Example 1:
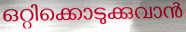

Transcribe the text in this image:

ഒറ്റിക്കൊടുക്കുവാൻ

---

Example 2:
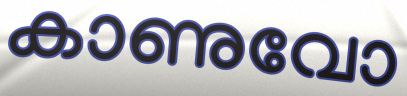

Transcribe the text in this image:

കാണുവോ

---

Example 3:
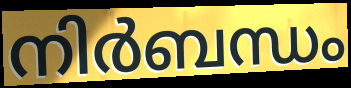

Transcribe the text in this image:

നിർബന്ധം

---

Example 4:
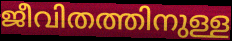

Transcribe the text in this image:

ജീവിതത്തിനുള്ള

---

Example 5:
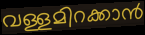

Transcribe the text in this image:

വള്ളമിറക്കാൻ